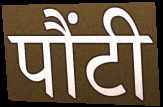
पौंटी